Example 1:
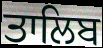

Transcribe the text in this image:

ਤਾਲਿਬ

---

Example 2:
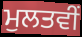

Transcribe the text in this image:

ਮੁਲਤਵੀਂ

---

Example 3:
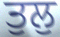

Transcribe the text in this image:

ਤੁਲੁ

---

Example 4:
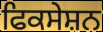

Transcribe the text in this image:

ਫਿਕਸੇਸ਼ਨ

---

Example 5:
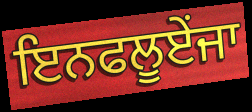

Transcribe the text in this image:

ਇਨਫਲੂਏਂਜਾ